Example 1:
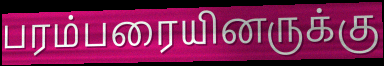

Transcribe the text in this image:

பரம்பரையினருக்கு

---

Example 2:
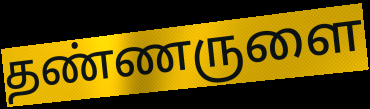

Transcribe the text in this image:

தண்ணருளை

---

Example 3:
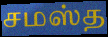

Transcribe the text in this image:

சமஸ்த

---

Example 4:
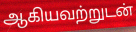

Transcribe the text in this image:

ஆகியவற்றுடன்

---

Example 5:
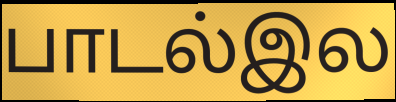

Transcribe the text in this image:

பாடல்இல